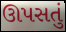
ઊપસતું